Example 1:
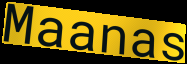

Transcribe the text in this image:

Maanas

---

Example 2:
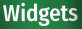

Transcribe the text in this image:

Widgets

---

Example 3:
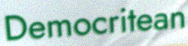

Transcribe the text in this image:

Democritean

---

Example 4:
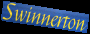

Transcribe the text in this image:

Swinnerton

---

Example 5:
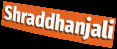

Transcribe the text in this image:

Shraddhanjali